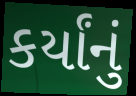
કર્યાંનું